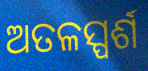
ଅତଳସ୍ପର୍ଶ